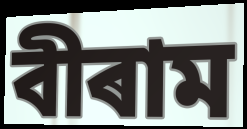
বীৰাম